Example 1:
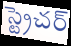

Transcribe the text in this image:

స్ట్రెచర్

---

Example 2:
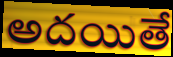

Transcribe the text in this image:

అదయితే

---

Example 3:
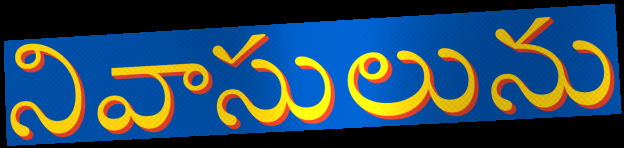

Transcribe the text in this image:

నివాసులును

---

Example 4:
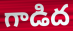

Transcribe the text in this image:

గాడిద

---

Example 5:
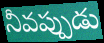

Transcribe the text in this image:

నీవప్పుడు